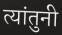
त्यांतुनी